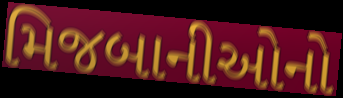
મિજબાનીઓનો